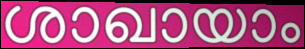
ശാഖായാം